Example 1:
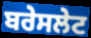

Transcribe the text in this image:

ਬਰੇਸਲੇਟ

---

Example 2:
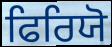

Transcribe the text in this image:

ਫਿਰਿਯੋ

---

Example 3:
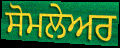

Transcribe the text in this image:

ਸੋਮਲੇਅਰ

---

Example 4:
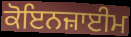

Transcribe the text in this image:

ਕੋਇਨਜ਼ਾਈਮ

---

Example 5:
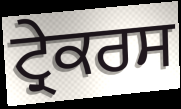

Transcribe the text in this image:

ਟ੍ਰੇਕਰਸ